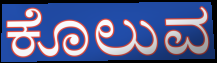
ಕೊಲುವ